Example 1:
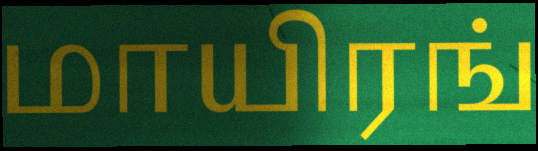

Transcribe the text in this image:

மாயிரங்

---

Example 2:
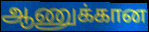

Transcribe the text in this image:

ஆணுக்கான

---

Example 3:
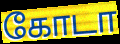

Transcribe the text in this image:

கோடா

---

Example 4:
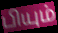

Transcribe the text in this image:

பியும்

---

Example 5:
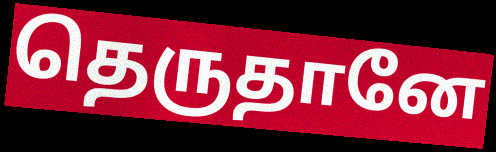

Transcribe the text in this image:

தெருதானே